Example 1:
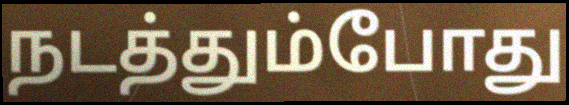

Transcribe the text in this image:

நடத்தும்போது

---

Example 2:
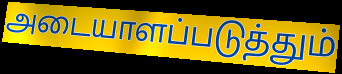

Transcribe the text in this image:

அடையாளப்படுத்தும்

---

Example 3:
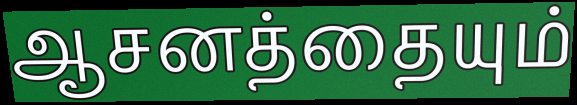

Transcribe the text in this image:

ஆசனத்தையும்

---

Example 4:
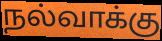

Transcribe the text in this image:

நல்வாக்கு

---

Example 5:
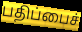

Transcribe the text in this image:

பதிப்பைச்